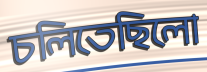
চলিতেছিলো